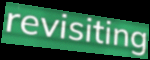
revisiting